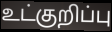
உட்குறிப்பு